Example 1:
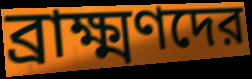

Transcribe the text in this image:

ব্রাক্ষ্মণদের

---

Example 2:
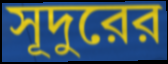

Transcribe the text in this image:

সূদুরের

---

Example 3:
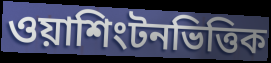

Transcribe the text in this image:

ওয়াশিংটনভিত্তিক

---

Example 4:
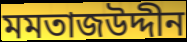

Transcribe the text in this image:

মমতাজউদ্দীন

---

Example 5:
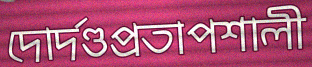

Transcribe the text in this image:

দোর্দণ্ডপ্রতাপশালী